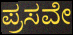
ಪ್ರಸವೇ